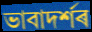
ভাবাদৰ্শৰ